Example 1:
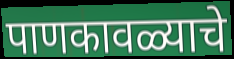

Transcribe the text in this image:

पाणकावळ्याचे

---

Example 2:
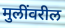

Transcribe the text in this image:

मुलींवरील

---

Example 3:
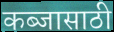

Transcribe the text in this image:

कब्जासाठी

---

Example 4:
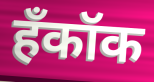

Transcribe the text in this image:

हँकॉक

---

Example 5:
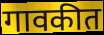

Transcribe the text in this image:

गावकीत